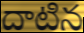
దాటిన